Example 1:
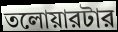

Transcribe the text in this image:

তলোয়ারটার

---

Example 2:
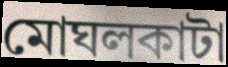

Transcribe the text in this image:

মোঘলকাটা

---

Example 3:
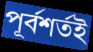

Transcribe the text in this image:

পূর্বশর্তই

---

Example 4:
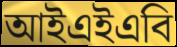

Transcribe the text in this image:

আইএইএবি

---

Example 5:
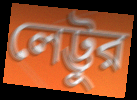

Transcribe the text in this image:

লেট্টুর